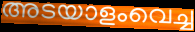
അടയാളംവെച്ച